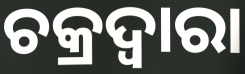
ଚକ୍ରଦ୍ୱାରା